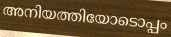
അനിയത്തിയോടൊപ്പം